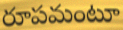
రూపమంటూ